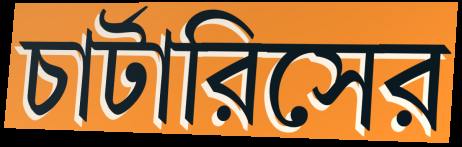
চার্টারিসের